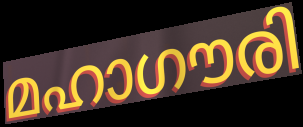
മഹാഗൗരി